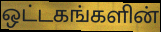
ஒட்டகங்களின்